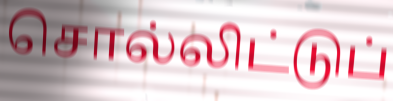
சொல்லிட்டுப்